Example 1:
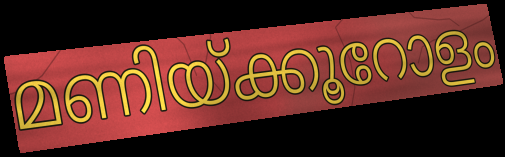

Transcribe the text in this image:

മണിയ്ക്കൂറോളം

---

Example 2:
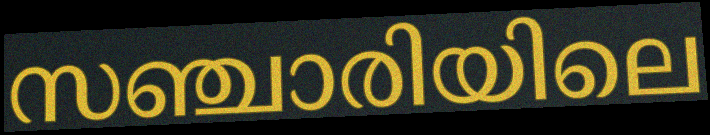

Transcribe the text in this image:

സഞ്ചാരിയിലെ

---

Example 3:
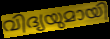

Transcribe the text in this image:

വിദ്യയുമായി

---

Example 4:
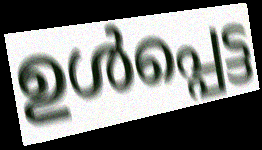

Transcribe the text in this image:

ഉൾപ്പെട്ട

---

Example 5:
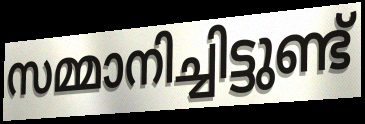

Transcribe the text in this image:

സമ്മാനിച്ചിട്ടുണ്ട്